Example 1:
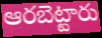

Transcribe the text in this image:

ఆరబెట్టారు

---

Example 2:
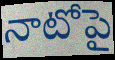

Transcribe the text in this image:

నాటోపై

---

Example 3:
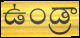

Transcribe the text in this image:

ఉండ్రా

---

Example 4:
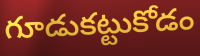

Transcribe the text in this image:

గూడుకట్టుకోడం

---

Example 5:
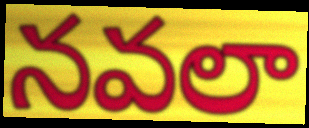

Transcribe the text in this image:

నవలా